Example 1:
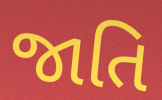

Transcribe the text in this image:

જાતિ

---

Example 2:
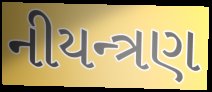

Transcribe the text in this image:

નીયન્ત્રણ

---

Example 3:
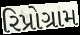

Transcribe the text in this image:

રિપ્રોગ્રામ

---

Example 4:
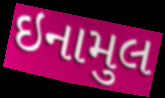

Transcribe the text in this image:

ઇનામુલ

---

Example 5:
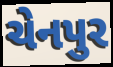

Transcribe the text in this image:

ચેનપુર